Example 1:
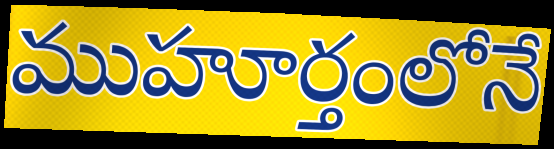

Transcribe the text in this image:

ముహూర్తంలోనే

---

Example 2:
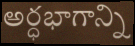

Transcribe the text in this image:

అర్ధభాగాన్ని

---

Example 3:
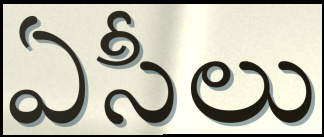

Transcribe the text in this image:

ఏసీలు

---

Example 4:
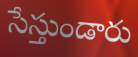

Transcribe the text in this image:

సేస్తుండారు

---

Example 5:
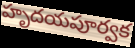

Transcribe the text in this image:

హృదయపూర్వక